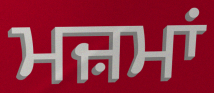
ਮਜ਼ਮਾਂ